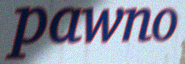
pawno